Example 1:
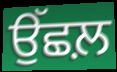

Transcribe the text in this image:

ਉੱਛਲ਼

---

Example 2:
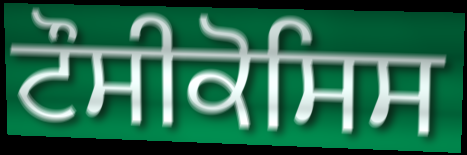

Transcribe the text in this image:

ਟੌਸੀਕੋਸਿਸ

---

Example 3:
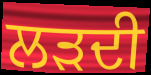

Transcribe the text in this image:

ਲੜਦੀ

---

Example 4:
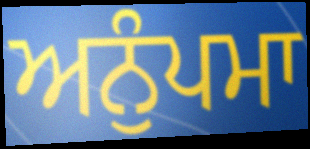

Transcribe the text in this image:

ਅਨੁੰਪਮਾ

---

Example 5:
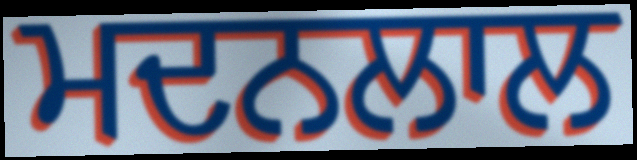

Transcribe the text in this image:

ਮਦਨਲਾਲ